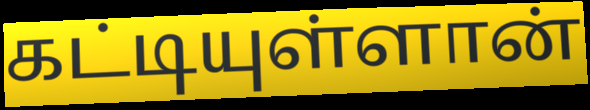
கட்டியுள்ளான்